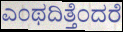
ಎಂಥದಿತ್ತೆಂದರೆ